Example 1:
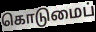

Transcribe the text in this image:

கொடுமைப்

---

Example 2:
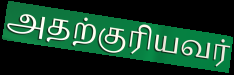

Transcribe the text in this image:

அதற்குரியவர்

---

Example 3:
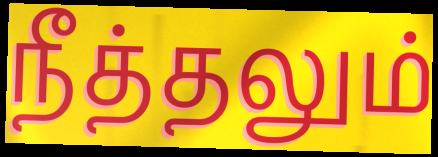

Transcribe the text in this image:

நீத்தலும்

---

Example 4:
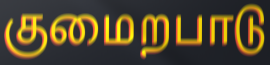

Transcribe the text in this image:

குமைறபாடு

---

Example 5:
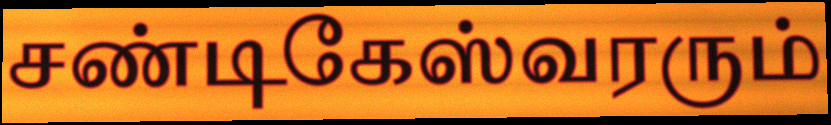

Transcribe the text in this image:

சண்டிகேஸ்வரரும்